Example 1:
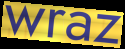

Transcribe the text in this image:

wraz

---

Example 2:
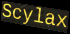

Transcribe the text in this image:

Scylax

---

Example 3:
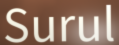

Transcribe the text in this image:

Surul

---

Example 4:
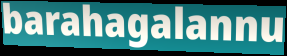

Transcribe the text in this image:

barahagalannu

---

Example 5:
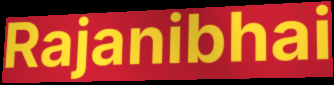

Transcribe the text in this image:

Rajanibhai